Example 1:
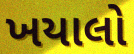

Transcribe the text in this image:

ખયાલો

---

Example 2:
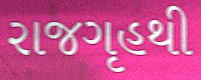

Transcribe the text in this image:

રાજગૃહથી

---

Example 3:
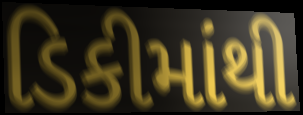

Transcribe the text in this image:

ડિકીમાંથી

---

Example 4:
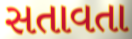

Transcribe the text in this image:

સતાવતા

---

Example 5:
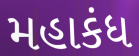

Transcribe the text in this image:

મહાકંધ